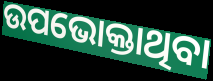
ଉପଭୋକ୍ତାଥିବା